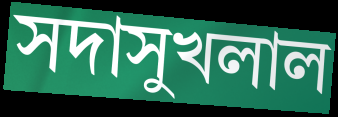
সদাসুখলাল